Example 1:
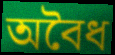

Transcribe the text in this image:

অবৈধ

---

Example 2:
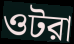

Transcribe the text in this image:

ওটরা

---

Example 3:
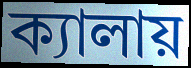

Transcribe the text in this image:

ক্যালায়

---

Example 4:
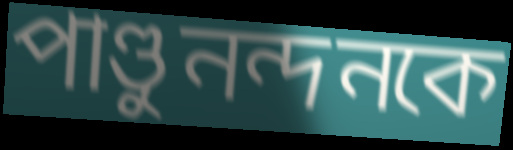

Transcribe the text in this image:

পাণ্ডুনন্দনকে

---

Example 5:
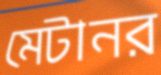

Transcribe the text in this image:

মেটানর